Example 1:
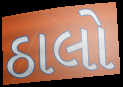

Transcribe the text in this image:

ઠાલો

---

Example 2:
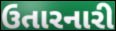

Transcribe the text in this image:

ઉતારનારી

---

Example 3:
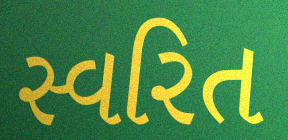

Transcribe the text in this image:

સ્વરિત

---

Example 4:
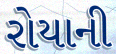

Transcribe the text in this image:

રોયાની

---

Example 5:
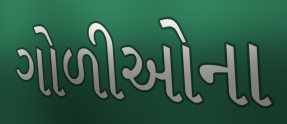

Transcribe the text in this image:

ગોળીઓના